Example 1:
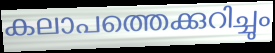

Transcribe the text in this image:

കലാപത്തെക്കുറിച്ചും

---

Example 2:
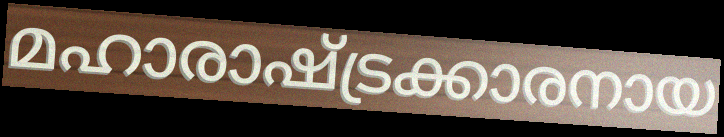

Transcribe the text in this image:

മഹാരാഷ്ട്രക്കാരനായ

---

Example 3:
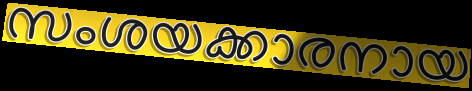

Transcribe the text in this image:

സംശയക്കാരനായ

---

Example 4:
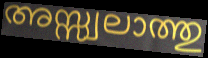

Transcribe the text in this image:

അസ്സ്വലാത്തു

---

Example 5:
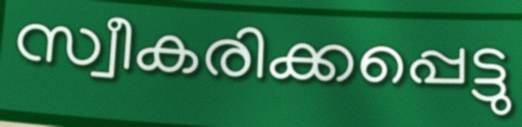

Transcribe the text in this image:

സ്വീകരിക്കപ്പെട്ടു